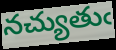
నచ్యుతుఁ